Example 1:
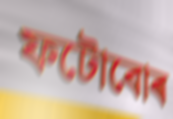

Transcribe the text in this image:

ফটোবোৰ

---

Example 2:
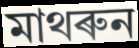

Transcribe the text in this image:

মাথৰুন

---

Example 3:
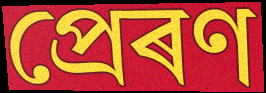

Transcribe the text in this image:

প্ৰেৰণ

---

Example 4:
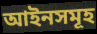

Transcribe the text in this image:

আইনসমূহ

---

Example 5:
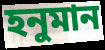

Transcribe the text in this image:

হনুমান